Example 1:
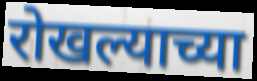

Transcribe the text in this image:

रोखल्याच्या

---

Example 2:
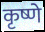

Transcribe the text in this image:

कृष्णे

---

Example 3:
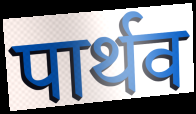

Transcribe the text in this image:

पार्थव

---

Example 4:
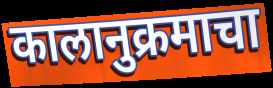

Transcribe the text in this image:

कालानुक्रमाचा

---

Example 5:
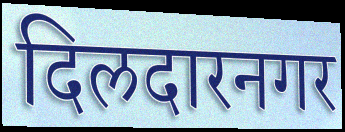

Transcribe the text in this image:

दिलदारनगर